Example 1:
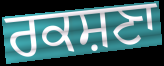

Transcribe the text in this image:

ਰਕਸ਼ਣਾ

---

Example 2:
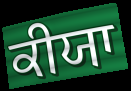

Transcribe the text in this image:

ਕੀਯਾ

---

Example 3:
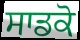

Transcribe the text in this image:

ਸਾਡਕੋ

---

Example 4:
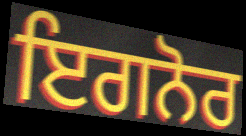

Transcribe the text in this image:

ਇਗਨੋਰ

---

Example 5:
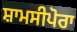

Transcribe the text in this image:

ਸ਼ਾਮਸੀਪੋਰਾ